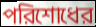
পরিশোধের